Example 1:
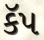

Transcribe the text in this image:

કૅપ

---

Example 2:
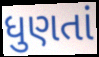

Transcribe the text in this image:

ધુણતાં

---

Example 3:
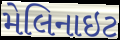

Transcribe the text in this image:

મેલિનાઇટ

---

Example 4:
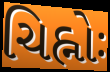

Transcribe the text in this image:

ચિહ્નોઃ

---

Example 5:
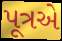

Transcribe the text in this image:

પૂત્રએ